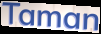
Taman